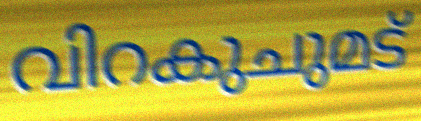
വിറകുചുമട്